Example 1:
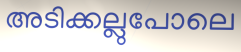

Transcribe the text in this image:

അടിക്കല്ലുപോലെ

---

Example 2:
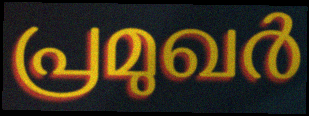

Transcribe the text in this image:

പ്രമുഖർ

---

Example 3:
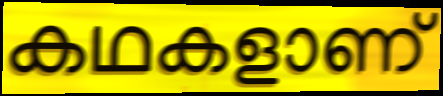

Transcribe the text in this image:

കഥകളാണ്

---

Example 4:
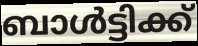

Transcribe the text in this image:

ബാൾട്ടിക്ക്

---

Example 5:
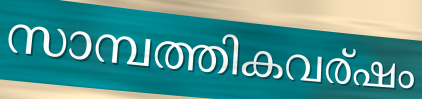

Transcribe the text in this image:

സാമ്പത്തികവര്ഷം